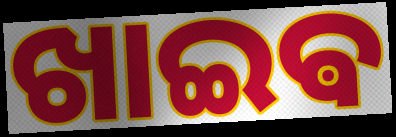
ଖାଇଵ